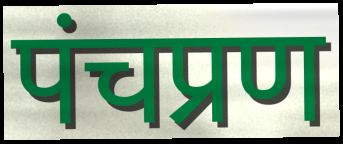
पंचप्रण